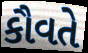
કૌવતે